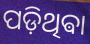
ପଡ଼ିଥିଵା